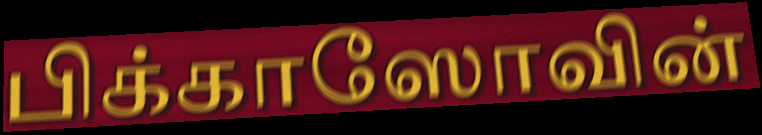
பிக்காஸோவின்